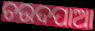
ଚଉଦପାଆ